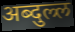
अब्दुल्ल